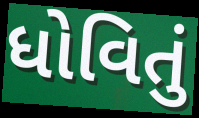
ધોવિતું